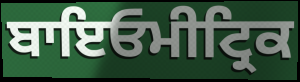
ਬਾਇਓਮੀਟ੍ਰਿਕ